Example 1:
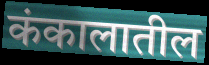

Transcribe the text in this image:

कंकालातील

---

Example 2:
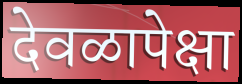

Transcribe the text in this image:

देवळापेक्षा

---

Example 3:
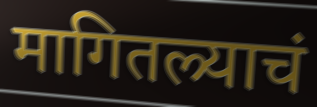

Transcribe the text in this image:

मागितल्याचं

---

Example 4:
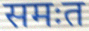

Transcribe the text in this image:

समःत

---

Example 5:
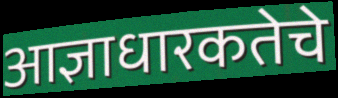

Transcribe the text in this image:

आज्ञाधारकतेचे